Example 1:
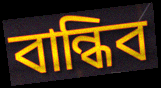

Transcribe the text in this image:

বান্ধিব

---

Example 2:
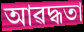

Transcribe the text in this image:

আৱদ্ধতা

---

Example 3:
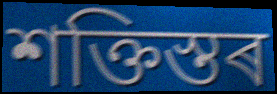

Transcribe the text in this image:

শক্তিস্তৰ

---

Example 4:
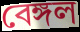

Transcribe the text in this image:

বেঙ্গল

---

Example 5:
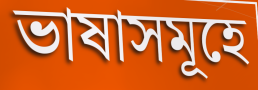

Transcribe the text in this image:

ভাষাসমূহে